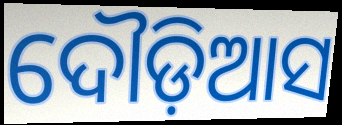
ଦୌଡ଼ିଆସ